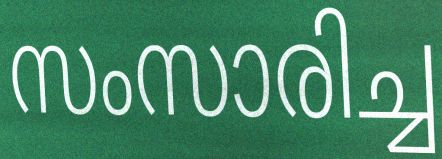
സംസാരിച്ച